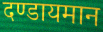
दण्डायमान